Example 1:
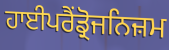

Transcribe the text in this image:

ਹਾਈਪਰੈਂਡ੍ਰੋਜਨਿਜ਼ਮ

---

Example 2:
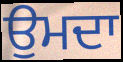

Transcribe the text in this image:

ਉਮਦਾ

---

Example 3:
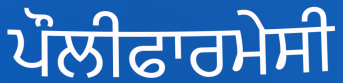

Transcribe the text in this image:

ਪੌਲੀਫਾਰਮੇਸੀ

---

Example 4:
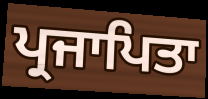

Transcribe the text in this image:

ਪ੍ਰਜਾਪਿਤਾ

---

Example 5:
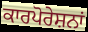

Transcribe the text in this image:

ਕਾਰਪੋਰੇਸ਼ਨਾਂ